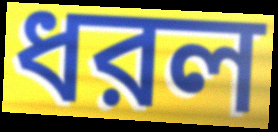
ধরল